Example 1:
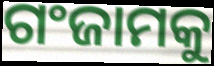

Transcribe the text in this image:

ଗଂଜାମକୁ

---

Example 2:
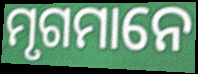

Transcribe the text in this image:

ମୃଗମାନେ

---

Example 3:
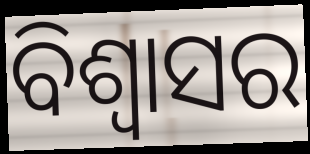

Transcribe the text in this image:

ବିଶ୍ୱାସର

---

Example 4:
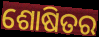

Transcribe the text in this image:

ଶୋଷିତର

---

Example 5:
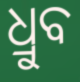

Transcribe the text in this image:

ଧ୍ରୁବ